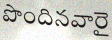
పొందినవారై